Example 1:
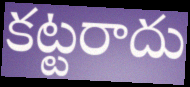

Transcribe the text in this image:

కట్టరాదు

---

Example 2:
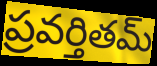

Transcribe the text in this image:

ప్రవర్తితమ్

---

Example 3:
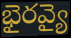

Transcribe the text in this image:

భైరవ్యై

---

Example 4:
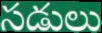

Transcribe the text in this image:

సడులు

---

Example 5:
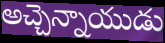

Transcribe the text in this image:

అచ్చెన్నాయుడు